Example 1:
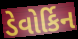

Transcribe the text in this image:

ડેવોર્કિન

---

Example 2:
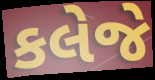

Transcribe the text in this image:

કલેજે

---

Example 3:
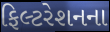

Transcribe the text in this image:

ફિલ્ટરેશનના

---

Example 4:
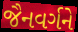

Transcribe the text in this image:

જૈનવર્ગને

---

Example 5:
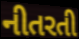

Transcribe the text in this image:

નીતરતી